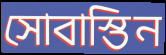
সোবাস্তিন